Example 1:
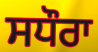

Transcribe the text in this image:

ਸਧੌਰਾ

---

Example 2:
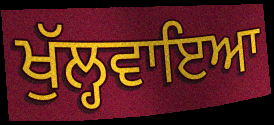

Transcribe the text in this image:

ਖੁੱਲ੍ਹਵਾਇਆ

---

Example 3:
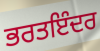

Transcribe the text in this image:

ਭਰਤਇੰਦਰ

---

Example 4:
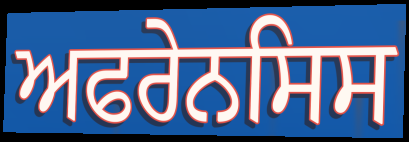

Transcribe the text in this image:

ਅਫਰੇਨਸਿਸ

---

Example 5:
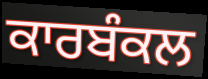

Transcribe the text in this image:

ਕਾਰਬੰਕਲ